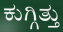
ಕುಗ್ಗಿತ್ತು